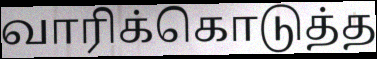
வாரிக்கொடுத்த